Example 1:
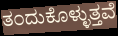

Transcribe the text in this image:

ತಂದುಕೊಳ್ಳುತ್ತವೆ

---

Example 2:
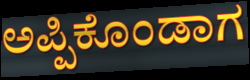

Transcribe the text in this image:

ಅಪ್ಪಿಕೊಂಡಾಗ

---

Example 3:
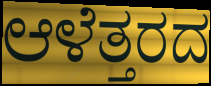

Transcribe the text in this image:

ಆಳೆತ್ತರದ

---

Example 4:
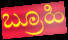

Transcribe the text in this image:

ಬ್ರೂಹಿ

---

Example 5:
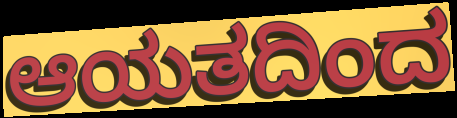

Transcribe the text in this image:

ಆಯತದಿಂದ